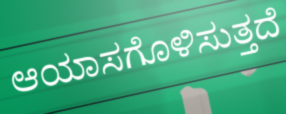
ಆಯಾಸಗೊಳಿಸುತ್ತದೆ